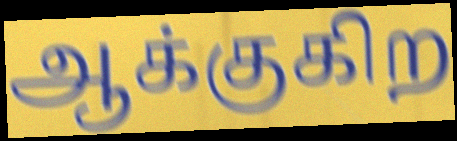
ஆக்குகிற